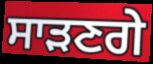
ਸਾੜਣਗੇ